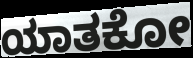
ಯಾತಕೋ